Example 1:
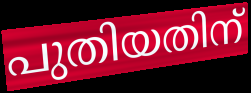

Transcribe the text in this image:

പുതിയതിന്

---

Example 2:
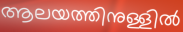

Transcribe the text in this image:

ആലയത്തിനുള്ളിൽ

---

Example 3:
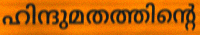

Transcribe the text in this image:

ഹിന്ദുമതത്തിന്റെ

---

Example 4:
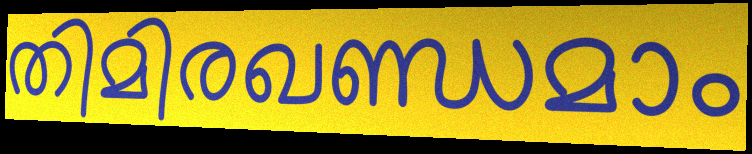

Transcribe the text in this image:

തിമിരഖണ്ഡമാം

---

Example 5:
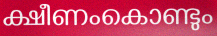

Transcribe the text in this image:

ക്ഷീണംകൊണ്ടും